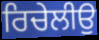
ਰਿਚੇਲੀਉ